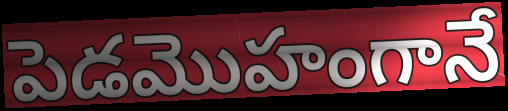
పెడమొహంగానే